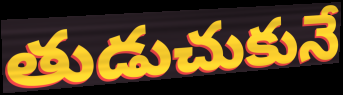
తుడుచుకునే